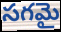
సగమై